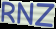
RNZ